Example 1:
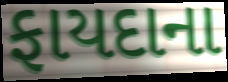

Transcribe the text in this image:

ફાયદાના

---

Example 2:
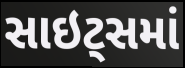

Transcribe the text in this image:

સાઇટ્સમાં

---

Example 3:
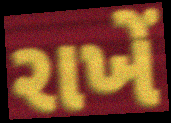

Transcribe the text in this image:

રાખેં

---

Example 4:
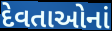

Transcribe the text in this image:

દેવતાઓનાં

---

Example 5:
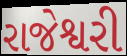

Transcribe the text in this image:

રાજેશ્વરી